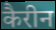
कैरीन